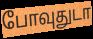
போவுதுடா